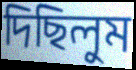
দিছিলুম